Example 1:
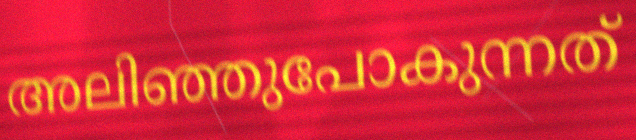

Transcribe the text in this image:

അലിഞ്ഞുപോകുന്നത്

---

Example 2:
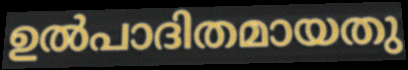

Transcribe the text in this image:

ഉൽപാദിതമായതു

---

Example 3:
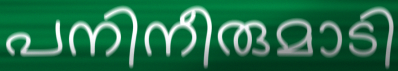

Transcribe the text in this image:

പനിനീരുമാടി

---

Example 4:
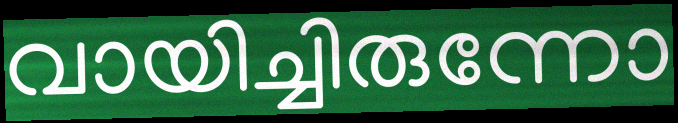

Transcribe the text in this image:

വായിച്ചിരുന്നോ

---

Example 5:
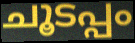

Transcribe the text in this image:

ചൂടപ്പം